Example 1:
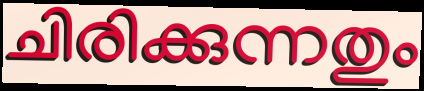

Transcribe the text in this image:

ചിരിക്കുന്നതും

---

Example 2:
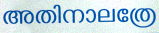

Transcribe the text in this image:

അതിനാലത്രേ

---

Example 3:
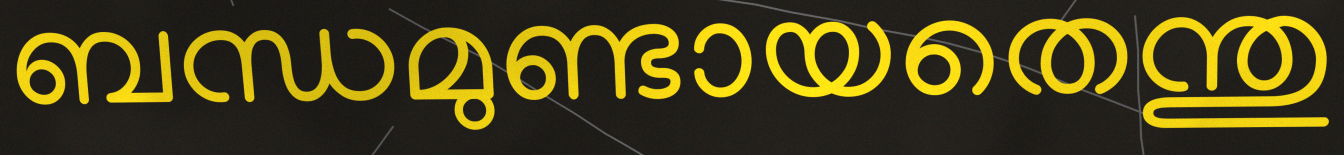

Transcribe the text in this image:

ബന്ധമുണ്ടായതെന്തു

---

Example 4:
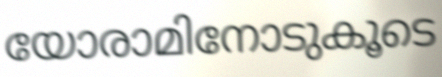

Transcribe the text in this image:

യോരാമിനോടുകൂടെ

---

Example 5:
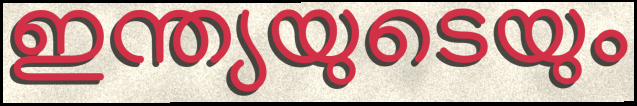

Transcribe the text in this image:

ഇന്ത്യയുടെയും